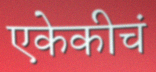
एकेकीचं